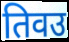
तिवउ